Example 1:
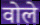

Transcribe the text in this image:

वोले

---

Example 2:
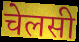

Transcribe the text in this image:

चेलसी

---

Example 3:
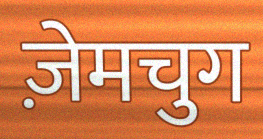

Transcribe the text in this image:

ज़ेमचुग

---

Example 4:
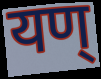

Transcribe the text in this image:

यण्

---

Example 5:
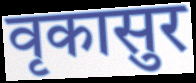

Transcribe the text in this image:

वृकासुर